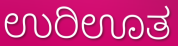
ಉರಿಊತ